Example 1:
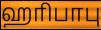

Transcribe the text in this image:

ஹரிபாபு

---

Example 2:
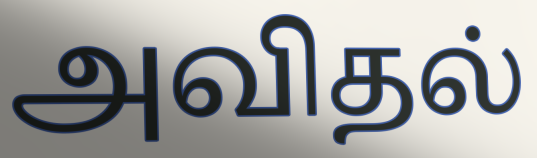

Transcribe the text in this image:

அவிதல்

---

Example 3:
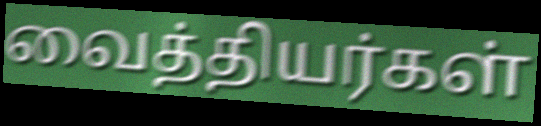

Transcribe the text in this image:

வைத்தியர்கள்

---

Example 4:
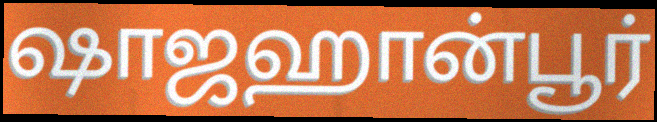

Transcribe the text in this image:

ஷாஜஹான்பூர்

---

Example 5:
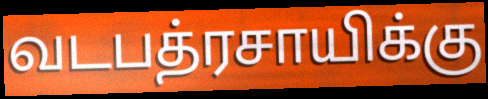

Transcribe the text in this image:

வடபத்ரசாயிக்கு